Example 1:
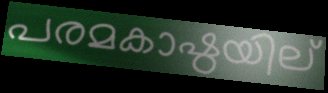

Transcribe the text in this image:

പരമകാഷ്ഠയില്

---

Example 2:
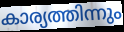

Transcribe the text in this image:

കാര്യത്തിന്നും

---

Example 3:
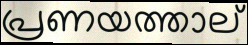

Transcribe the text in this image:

പ്രണയത്താല്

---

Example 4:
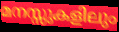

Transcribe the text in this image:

മനസ്സുകളിലും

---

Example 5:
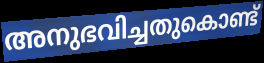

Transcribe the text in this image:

അനുഭവിച്ചതുകൊണ്ട്